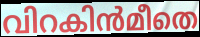
വിറകിൻമീതെ